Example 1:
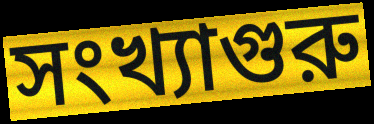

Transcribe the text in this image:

সংখ্যাগুরু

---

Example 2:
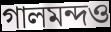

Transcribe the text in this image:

গালমন্দও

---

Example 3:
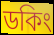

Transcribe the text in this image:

ডকিং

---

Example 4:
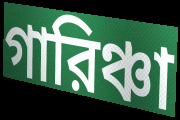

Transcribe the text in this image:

গারিঞ্চা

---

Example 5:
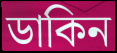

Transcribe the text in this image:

ডাকিন